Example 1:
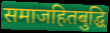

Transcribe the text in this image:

समाजहितबुद्धि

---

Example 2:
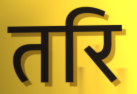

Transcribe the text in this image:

तरि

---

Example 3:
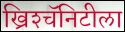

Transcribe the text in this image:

ख्रिश्चॅनिटीला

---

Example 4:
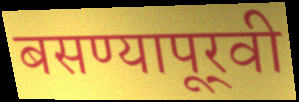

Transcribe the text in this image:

बसण्यापूर्वी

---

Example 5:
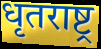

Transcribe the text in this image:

धृतराष्ट्र